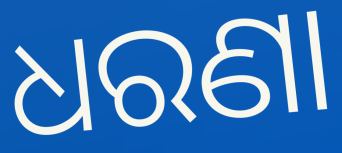
ଧରଣା